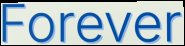
Forever